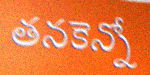
తనకెన్నో